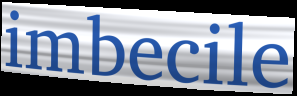
imbecile